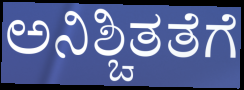
ಅನಿಶ್ಚಿತತೆಗೆ